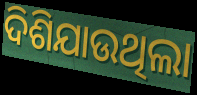
ଦିଶିଯାଉଥିଲା